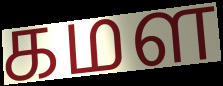
கமள